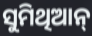
ସୁମିଥିଆନ୍